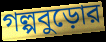
গল্পবুড়োর